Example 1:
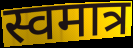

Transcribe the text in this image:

स्वमात्र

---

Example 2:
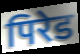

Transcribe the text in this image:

पिरेड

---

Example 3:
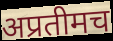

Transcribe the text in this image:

अप्रतीमच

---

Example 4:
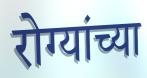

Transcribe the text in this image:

रोग्यांच्या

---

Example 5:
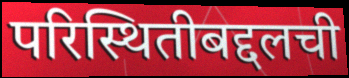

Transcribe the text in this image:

परिस्थितीबद्दलची